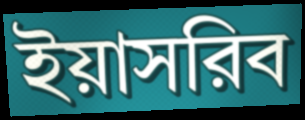
ইয়াসরিব